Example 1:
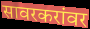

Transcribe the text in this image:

सावरकरांवर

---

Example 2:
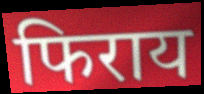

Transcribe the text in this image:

फिराय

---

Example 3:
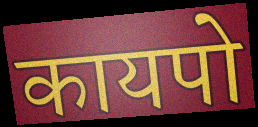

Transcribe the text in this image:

कायपो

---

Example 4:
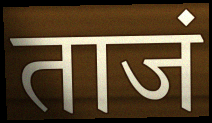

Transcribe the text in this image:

ताजं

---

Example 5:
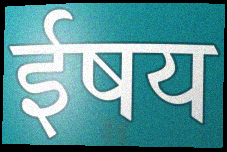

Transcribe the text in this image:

ईषय